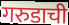
गरुडाची